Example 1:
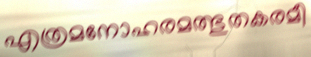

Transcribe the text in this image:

എത്രമനോഹരമത്ഭുതകരമീ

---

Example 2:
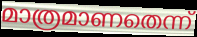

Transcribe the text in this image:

മാത്രമാണതെന്ന്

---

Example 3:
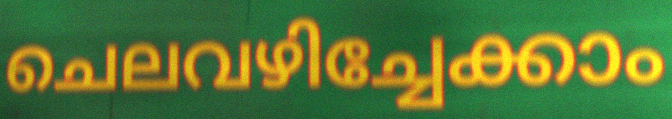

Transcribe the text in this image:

ചെലവഴിച്ചേക്കാം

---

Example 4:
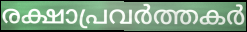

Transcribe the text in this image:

രക്ഷാപ്രവർത്തകർ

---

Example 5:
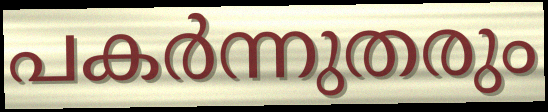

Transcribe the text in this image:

പകർന്നുതരും